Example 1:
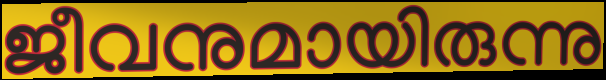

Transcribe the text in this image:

ജീവനുമായിരുന്നു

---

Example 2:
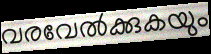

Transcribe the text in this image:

വരവേൽക്കുകയും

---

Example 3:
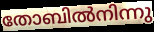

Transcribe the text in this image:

തോബിൽനിന്നു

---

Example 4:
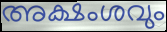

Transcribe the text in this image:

അക്ഷംശവും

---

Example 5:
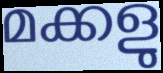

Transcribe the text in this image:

മക്കളു